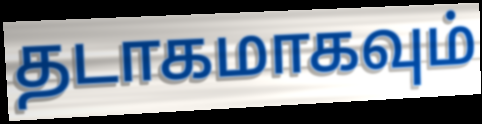
தடாகமாகவும்